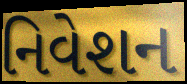
નિવેશન